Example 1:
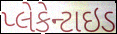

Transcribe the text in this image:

પ્લેકેન્ટાઇડ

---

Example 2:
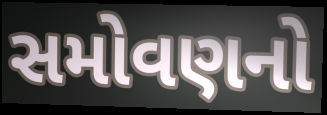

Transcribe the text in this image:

સમોવણનો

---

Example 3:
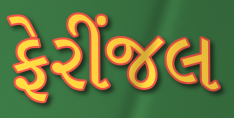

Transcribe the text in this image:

ફેરીંજલ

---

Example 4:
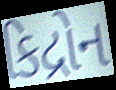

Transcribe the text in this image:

કિદ્રોન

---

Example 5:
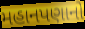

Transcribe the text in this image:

મહાનપણાનો